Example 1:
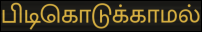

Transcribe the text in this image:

பிடிகொடுக்காமல்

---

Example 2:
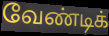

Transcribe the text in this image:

வேண்டிக்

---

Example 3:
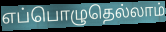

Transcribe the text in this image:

எப்பொழுதெல்லாம்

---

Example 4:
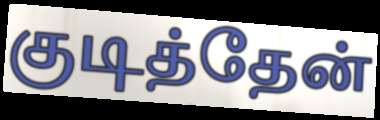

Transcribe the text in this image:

குடித்தேன்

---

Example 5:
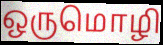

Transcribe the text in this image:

ஒருமொழி